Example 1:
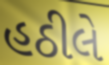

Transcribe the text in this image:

હઠીલે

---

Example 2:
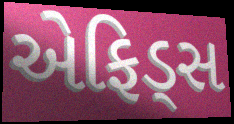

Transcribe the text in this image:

એફિડ્સ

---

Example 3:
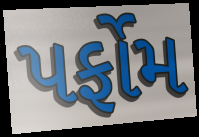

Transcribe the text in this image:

પર્ફોમ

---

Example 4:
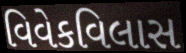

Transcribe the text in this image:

વિવેકવિલાસ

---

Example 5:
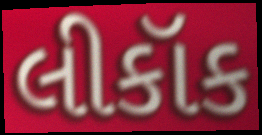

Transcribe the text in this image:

લીકૉક